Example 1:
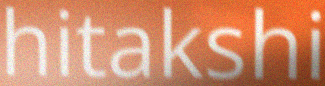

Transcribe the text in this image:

hitakshi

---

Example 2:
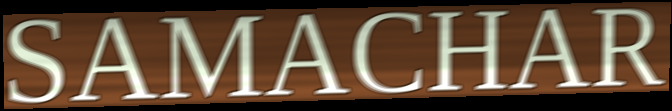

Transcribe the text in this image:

SAMACHAR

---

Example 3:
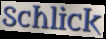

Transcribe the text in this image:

Schlick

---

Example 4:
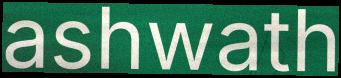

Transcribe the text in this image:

ashwath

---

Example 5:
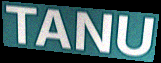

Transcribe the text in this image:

TANU